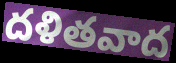
దళితవాద